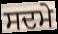
ਸਦਮੇ